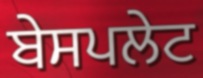
ਬੇਸਪਲੇਟ